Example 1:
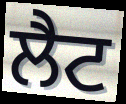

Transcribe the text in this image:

ਲੈਟ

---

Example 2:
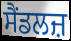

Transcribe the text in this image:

ਸੈਂਡਲਜ਼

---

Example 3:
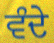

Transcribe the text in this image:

ਵੰਦੇ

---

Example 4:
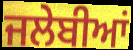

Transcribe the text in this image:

ਜਲੇਬੀਆਂ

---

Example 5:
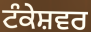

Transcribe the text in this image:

ਟੰਕੇਸ਼ਵਰ